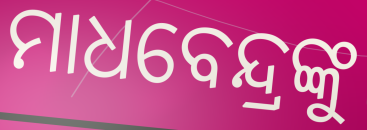
ମାଧବେନ୍ଦ୍ରଙ୍କୁ